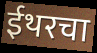
ईथरचा